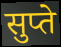
सुप्ते